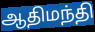
ஆதிமந்தி